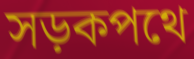
সড়কপথে